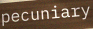
pecuniary